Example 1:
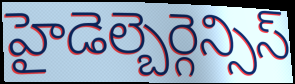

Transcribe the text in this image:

హైడెల్బెర్గెన్సిస్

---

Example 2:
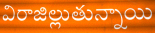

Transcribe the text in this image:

విరాజిల్లుతున్నాయి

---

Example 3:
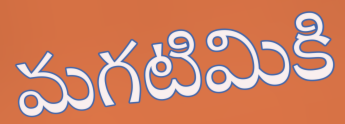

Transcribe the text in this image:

మగటిమికి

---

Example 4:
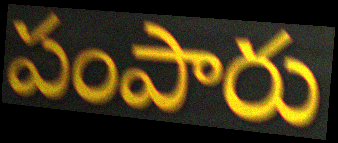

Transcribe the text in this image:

పంపారు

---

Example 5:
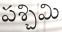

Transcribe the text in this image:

పశ్చిమి